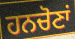
ਹਨਚੋਣਾਂ